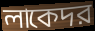
লাকেদর